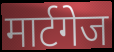
मार्टगेज